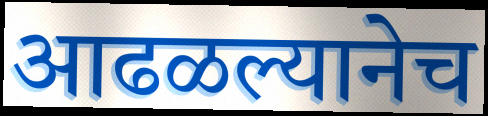
आढळल्यानेच